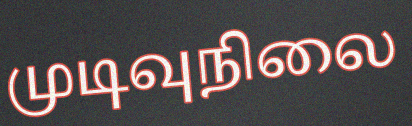
முடிவுநிலை